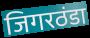
जिगरठंडा